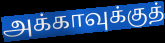
அக்காவுக்குத்